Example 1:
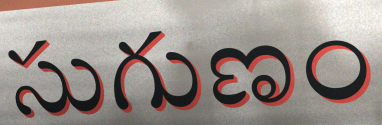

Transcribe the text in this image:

సుగుణం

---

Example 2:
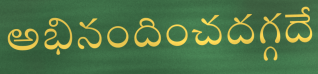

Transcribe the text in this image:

అభినందించదగ్గదే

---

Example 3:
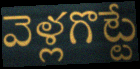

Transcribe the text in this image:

వెళ్లగొట్టే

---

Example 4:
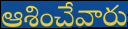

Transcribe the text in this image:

ఆశించేవారు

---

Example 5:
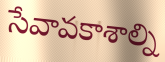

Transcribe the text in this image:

సేవావకాశాల్ని